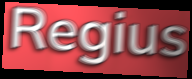
Regius